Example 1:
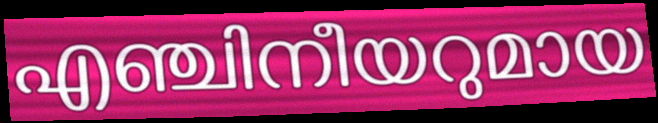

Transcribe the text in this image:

എഞ്ചിനീയറുമായ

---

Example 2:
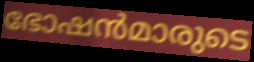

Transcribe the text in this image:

ഭോഷൻമാരുടെ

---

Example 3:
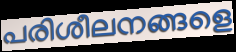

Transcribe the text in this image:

പരിശീലനങ്ങളെ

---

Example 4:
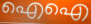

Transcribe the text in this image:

ഐഐ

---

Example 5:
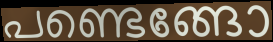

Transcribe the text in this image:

പണ്ടെങ്ങോ